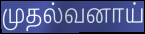
முதல்வனாய்